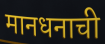
मानधनाची